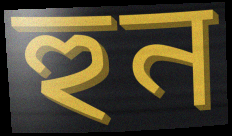
হুন